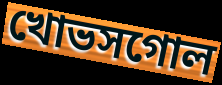
খোভসগোল